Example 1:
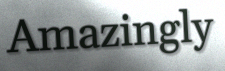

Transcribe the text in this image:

Amazingly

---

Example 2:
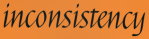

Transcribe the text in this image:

inconsistency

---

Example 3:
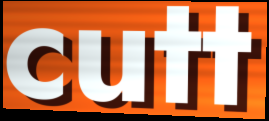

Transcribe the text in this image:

cutt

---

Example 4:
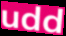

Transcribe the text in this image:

udd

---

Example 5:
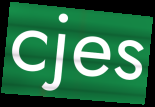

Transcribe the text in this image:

cjes